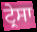
ਟ੍ਰੇਸਾ